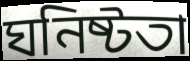
ঘনিষ্টতা